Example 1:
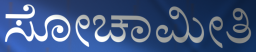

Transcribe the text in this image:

ಸೋಚಾಮೀತಿ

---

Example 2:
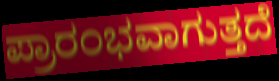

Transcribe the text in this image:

ಪ್ರಾರಂಭವಾಗುತ್ತದೆ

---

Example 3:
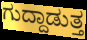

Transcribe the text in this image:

ಗುದ್ದಾಡುತ್ತ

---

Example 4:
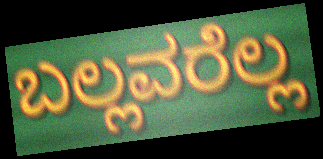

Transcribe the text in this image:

ಬಲ್ಲವರೆಲ್ಲ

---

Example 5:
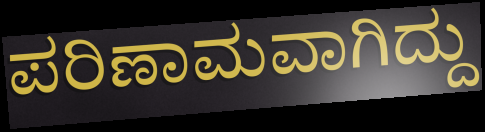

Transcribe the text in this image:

ಪರಿಣಾಮವಾಗಿದ್ದು